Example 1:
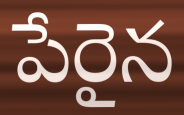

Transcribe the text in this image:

పేరైన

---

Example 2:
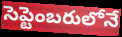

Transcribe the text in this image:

సెప్టెంబరులోనే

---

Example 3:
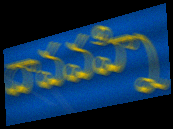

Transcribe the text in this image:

దావవహ్ని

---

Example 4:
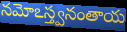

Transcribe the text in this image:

నమోఽస్త్వనంతాయ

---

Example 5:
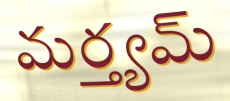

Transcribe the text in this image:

మర్త్యమ్